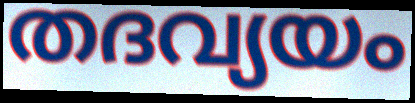
തദവ്യയം